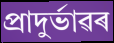
প্ৰাদুৰ্ভাৱৰ